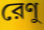
রেণু